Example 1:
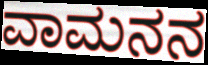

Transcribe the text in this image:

ವಾಮನನ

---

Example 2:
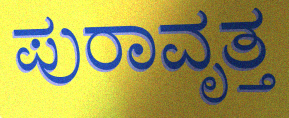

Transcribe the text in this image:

ಪುರಾವೃತ್ತ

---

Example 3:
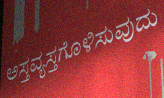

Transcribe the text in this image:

ಅಸ್ತವ್ಯಸ್ತಗೊಳಿಸುವುದು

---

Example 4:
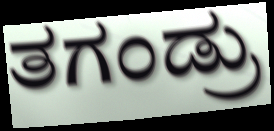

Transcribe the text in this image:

ತಗಂಡ್ರು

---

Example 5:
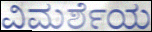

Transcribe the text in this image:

ವಿಮರ್ಶೆಯ